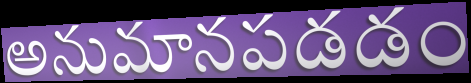
అనుమానపడడం